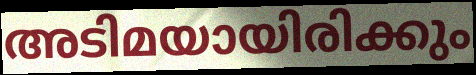
അടിമയായിരിക്കും